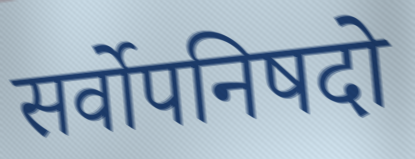
सर्वोपनिषदो